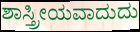
ಶಾಸ್ತ್ರೀಯವಾದುದು